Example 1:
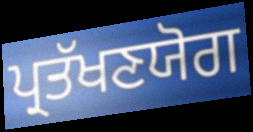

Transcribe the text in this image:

ਪ੍ਰਤੱਖਣਯੋਗ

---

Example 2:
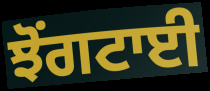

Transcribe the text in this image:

ਝੋਂਗਟਾਈ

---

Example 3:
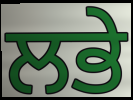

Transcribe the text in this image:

ਲਭੇ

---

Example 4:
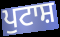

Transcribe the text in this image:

ਪੁਟਾਸ਼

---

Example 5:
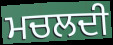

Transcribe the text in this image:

ਮਚਲਦੀ